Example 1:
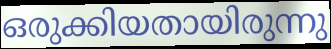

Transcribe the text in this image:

ഒരുക്കിയതായിരുന്നു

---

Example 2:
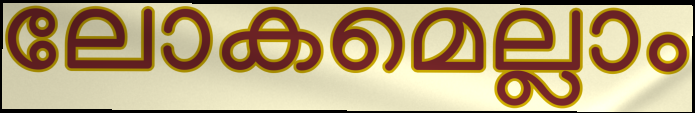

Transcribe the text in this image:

ലോകമെല്ലാം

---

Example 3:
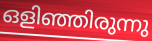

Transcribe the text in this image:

ഒളിഞ്ഞിരുന്നു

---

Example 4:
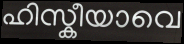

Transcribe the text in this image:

ഹിസ്കീയാവെ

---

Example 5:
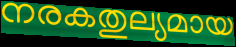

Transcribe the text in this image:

നരകതുല്യമായ